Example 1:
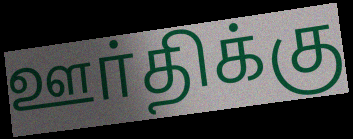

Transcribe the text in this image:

ஊர்திக்கு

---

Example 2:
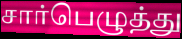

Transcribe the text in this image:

சார்பெழுத்து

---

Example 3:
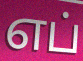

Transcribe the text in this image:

எப்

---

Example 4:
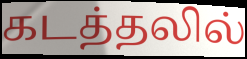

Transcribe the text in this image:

கடத்தலில்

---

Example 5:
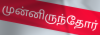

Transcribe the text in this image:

முன்னிருந்தோர்